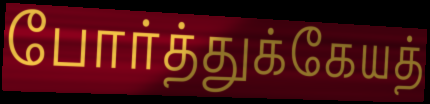
போர்த்துக்கேயத்